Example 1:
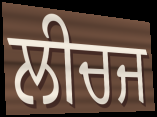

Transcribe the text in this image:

ਲੀਚਜ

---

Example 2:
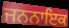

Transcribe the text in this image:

ਜਨਨਾਇਕ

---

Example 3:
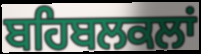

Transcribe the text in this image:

ਬਹਿਬਲਕਲਾਂ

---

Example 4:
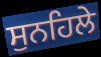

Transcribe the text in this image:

ਸੁਨਹਿਲੇ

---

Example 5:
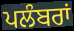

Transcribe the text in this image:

ਪਲੰਬਰਾਂ